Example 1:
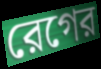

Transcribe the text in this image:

রেগের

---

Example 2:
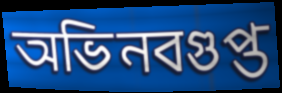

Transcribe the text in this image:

অভিনবগুপ্ত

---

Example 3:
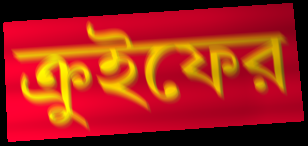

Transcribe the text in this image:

ক্রুইফের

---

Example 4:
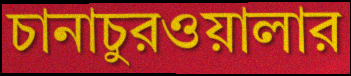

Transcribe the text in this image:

চানাচুরওয়ালার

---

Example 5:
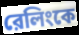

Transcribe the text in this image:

রেলিংকে